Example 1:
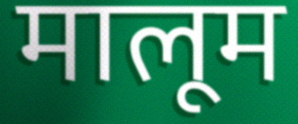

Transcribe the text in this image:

मालूम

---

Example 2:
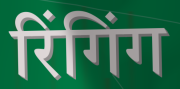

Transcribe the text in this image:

रिंगिंग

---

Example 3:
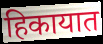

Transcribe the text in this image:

हिकायात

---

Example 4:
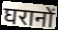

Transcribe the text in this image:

घरानों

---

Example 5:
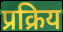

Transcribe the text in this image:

प्रक्रिय